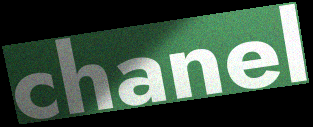
chanel